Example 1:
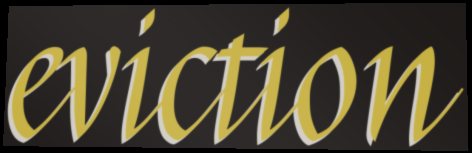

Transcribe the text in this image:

eviction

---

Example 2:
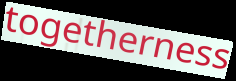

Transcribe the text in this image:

togetherness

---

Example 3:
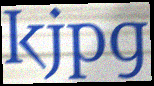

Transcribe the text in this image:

kjpg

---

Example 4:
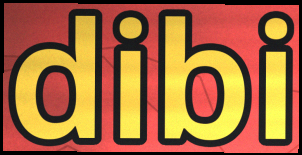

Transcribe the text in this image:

dibi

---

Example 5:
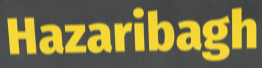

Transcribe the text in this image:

Hazaribagh